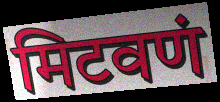
मिटवणं